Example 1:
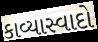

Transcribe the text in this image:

કાવ્યાસ્વાદો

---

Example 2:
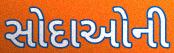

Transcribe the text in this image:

સોદાઓની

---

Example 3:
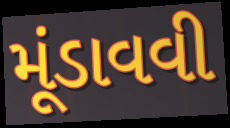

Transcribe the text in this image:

મૂંડાવવી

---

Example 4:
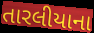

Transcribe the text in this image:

તારલીયાના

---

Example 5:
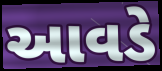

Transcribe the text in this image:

આવડે